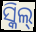
ସ୍କିଲ୍